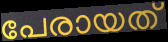
പേരായത്